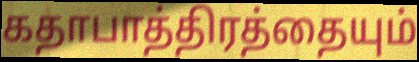
கதாபாத்திரத்தையும்